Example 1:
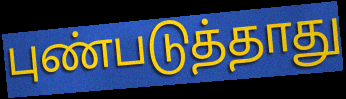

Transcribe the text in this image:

புண்படுத்தாது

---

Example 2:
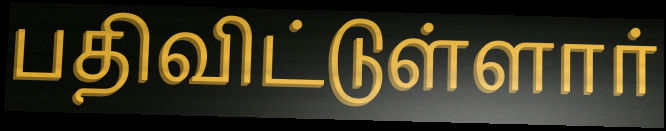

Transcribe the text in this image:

பதிவிட்டுள்ளார்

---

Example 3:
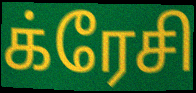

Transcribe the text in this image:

க்ரேசி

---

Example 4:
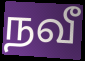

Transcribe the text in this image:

நவீ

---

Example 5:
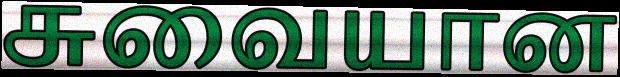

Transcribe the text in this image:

சுவையான